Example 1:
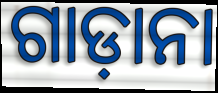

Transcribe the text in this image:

ଗାଡ଼ାନା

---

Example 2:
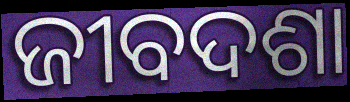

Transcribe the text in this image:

ଜୀବଦଶା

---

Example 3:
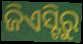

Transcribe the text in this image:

ଜିଏସ୍ଟିରୁ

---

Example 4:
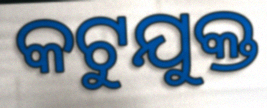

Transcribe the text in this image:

କଟୁଯୁକ୍ତ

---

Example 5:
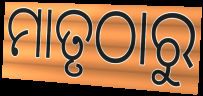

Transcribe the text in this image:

ମାତୃଠାରୁ